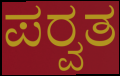
ಪರ್‍ವತ